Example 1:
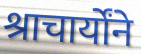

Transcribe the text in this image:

श्राचार्योंने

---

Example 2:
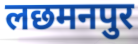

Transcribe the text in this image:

लछमनपुर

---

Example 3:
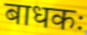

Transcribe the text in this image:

बाधकः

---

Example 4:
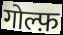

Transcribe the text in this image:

गोल्फ़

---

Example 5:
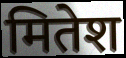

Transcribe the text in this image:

मितेश